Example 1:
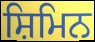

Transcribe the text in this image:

ਸ਼ਿਮਿਨ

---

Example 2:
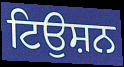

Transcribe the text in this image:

ਟਿਉਸ਼ਨ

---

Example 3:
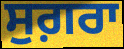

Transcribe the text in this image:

ਸੁਗ਼ਰਾ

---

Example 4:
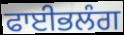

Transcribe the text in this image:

ਫਾਈਭਲੰਗ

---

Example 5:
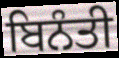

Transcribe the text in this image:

ਬਿਨੰਤੀ